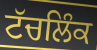
ਟੱਚਲਿੰਕ